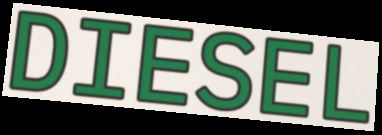
DIESEL